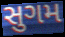
સુગમ